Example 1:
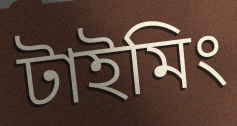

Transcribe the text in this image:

টাইমিং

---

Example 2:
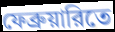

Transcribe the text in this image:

ফেব্রুয়ারিতে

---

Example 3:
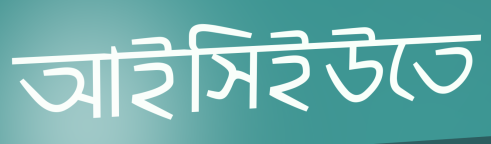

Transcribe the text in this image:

আইসিইউতে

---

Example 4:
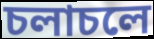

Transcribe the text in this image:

চলাচলে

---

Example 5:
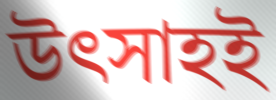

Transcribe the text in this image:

উৎসাহই